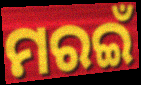
ମରଇଁ